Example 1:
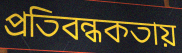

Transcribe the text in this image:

প্রতিবন্ধকতায়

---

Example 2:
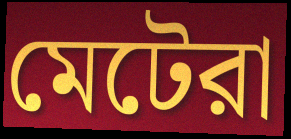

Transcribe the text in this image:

মেটেরা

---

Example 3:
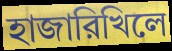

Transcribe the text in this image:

হাজারিখিলে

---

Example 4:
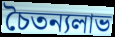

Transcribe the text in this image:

চৈতন্যলাভ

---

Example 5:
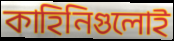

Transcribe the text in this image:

কাহিনিগুলোই